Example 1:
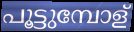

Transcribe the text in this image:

പൂട്ടുമ്പോള്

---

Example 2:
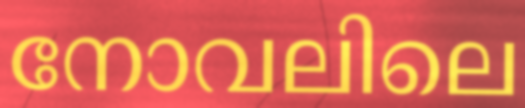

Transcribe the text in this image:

നോവലിലെ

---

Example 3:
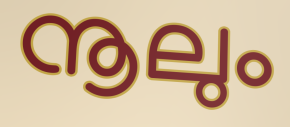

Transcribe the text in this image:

നൂലും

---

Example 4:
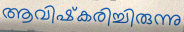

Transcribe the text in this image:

ആവിഷ്‌കരിച്ചിരുന്നു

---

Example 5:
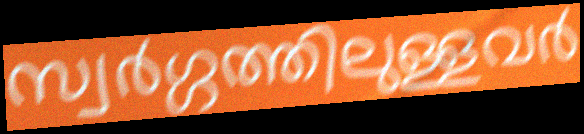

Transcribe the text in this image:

സ്വർഗ്ഗത്തിലുള്ളവർ